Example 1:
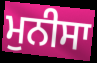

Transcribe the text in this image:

ਮੁਨੀਸਾ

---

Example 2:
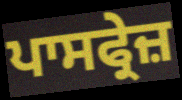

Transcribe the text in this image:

ਪਾਸਫ੍ਰੇਜ਼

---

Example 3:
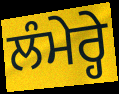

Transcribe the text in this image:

ਲੰਮੇਰ੍ਹੇ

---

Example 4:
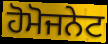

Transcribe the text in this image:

ਹੋਮੋਜਨੇਟ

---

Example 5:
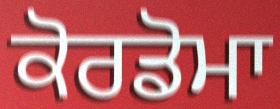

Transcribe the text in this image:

ਕੋਰਡੋਮਾ